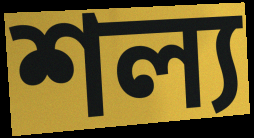
শল্য